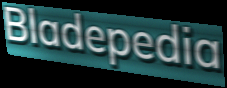
Bladepedia